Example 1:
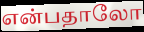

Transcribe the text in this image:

என்பதாலோ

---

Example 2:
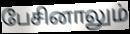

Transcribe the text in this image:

பேசினாலும்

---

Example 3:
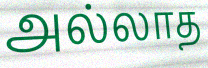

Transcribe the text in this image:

அல்லாத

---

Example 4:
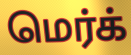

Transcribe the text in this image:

மெர்க்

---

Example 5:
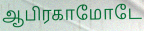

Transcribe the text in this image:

ஆபிரகாமோடே